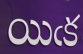
యిఁక